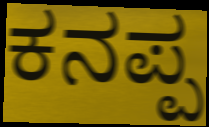
ಕನಪ್ಪ